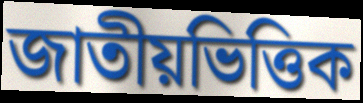
জাতীয়ভিত্তিক